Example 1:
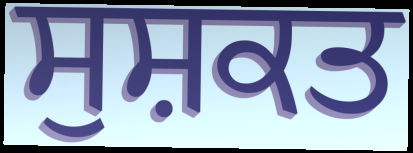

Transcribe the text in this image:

ਸੁਸ਼ਕਤ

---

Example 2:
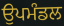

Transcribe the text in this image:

ਉਪਮੰਡਲ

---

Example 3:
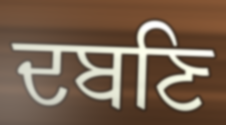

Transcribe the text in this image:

ਦਬਣਿ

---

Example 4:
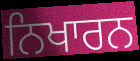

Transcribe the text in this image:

ਨਿਖਾਰਨ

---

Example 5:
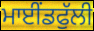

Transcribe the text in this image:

ਮਾਈਂਡਫੁੱਲੀ